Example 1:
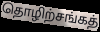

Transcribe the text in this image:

தொழிற்சங்கத்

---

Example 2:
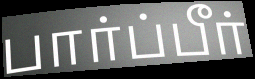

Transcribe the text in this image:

பார்ப்பீர்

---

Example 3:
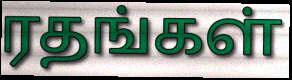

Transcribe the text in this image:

ரதங்கள்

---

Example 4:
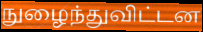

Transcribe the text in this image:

நுழைந்துவிட்டன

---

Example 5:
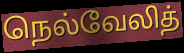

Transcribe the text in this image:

நெல்வேலித்